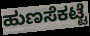
ಹುಣಸೆಕಟ್ಟೆ